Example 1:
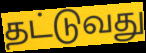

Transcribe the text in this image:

தட்டுவது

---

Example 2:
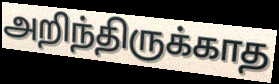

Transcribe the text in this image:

அறிந்திருக்காத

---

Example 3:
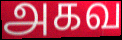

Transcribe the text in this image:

அகவ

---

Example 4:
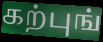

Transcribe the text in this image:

கற்புங்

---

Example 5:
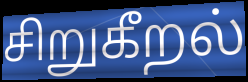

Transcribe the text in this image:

சிறுகீறல்